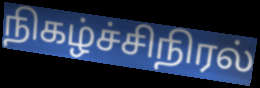
நிகழ்ச்சிநிரல்